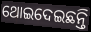
ଥୋଇଦେଇଛନ୍ତି